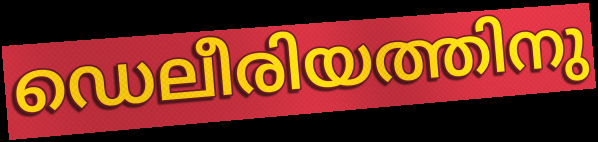
ഡെലീരിയത്തിനു